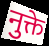
नुक्ते